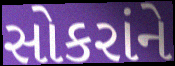
સોકરાંને